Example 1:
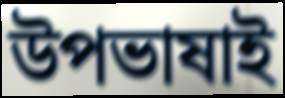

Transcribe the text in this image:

উপভাষাই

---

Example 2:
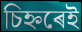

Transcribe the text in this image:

চিহ্নৰেই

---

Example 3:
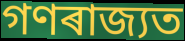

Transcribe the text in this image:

গণৰাজ্যত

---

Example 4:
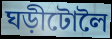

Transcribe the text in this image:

ঘড়ীটোলৈ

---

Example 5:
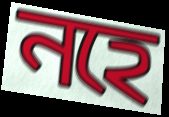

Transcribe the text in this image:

নহে